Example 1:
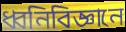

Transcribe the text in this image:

ধ্বনিবিজ্ঞানে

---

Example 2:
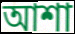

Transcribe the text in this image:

আশা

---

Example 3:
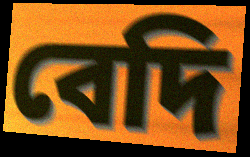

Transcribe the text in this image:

বেদি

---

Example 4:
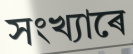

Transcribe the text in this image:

সংখ্যাৰে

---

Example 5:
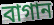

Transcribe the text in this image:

বাগান